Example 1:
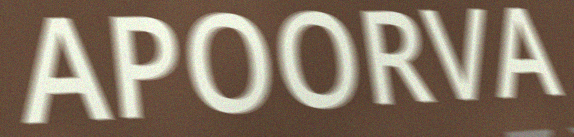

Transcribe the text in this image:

APOORVA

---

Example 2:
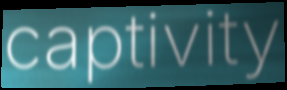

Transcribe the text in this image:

captivity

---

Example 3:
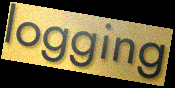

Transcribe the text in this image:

logging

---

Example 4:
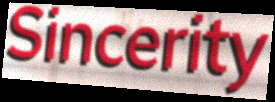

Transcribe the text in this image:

Sincerity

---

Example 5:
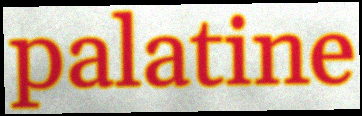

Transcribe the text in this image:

palatine